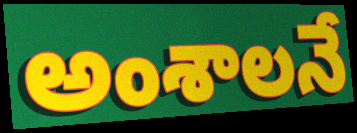
అంశాలనే